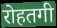
रोहतगी